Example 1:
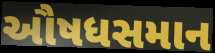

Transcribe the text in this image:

ઔષધસમાન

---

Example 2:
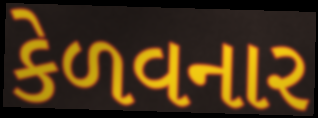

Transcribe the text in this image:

કેળવનાર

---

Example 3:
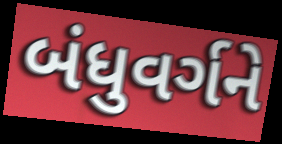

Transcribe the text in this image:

બંધુવર્ગને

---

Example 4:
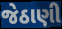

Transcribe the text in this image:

જેઠાણી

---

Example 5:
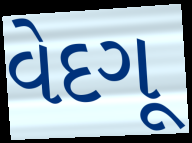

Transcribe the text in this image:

વેદગૂ